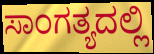
ಸಾಂಗತ್ಯದಲ್ಲಿ